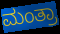
ಮಂತ್ರಾ